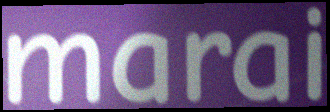
marai